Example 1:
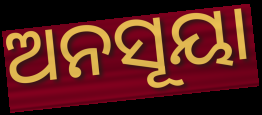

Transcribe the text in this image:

ଅନସୂୟା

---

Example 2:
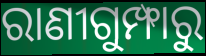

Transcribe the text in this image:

ରାଣୀଗୁମ୍ଫାରୁ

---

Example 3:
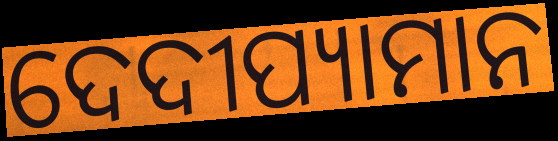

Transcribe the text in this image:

ଦେଦୀପ୍ୟାମାନ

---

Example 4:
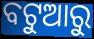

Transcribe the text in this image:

ବଟୁଆରୁ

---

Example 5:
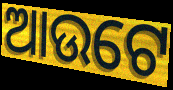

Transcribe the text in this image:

ଆଉଟେ